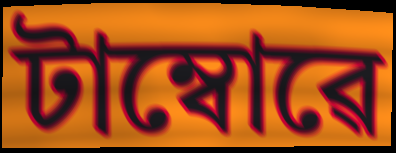
টাম্বোৱে